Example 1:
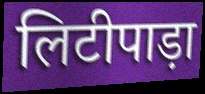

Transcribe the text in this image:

लिटीपाड़ा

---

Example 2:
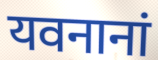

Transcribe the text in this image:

यवनानां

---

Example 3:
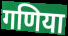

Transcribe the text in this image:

गणिया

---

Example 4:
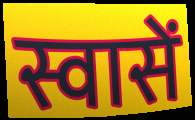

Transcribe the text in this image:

स्वासें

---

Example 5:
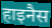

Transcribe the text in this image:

हाइनैस